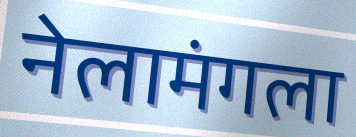
नेलामंगला